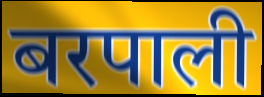
बरपाली